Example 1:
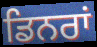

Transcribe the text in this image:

ਡਿਨਰਾਂ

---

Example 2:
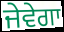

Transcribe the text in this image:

ਜੇਵੇਗਾ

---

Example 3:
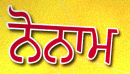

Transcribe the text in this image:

ਨੋਨਾਮ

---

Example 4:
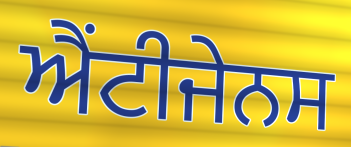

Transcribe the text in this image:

ਐਂਟੀਜੇਨਸ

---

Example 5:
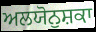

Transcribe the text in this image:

ਅਲਯੋਨੁਸ਼ਕਾ